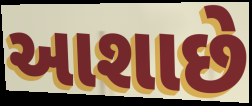
આશાછે